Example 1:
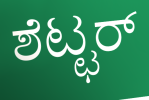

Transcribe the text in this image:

ಶೆಟ್ಟರ್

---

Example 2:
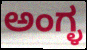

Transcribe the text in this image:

ಅಂಗ್ಳ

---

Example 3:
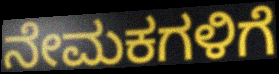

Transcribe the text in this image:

ನೇಮಕಗಳಿಗೆ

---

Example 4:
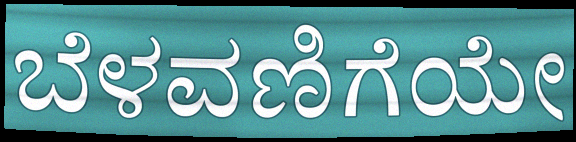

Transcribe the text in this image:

ಬೆಳವಣಿಗೆಯೇ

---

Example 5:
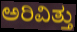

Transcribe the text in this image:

ಅರಿವಿತ್ತು